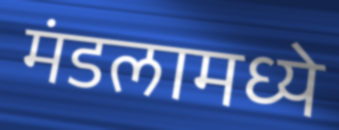
मंडलामध्ये